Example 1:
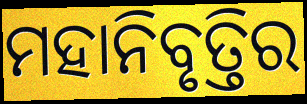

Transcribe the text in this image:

ମହାନିବୃତ୍ତିର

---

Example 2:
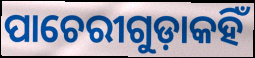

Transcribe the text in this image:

ପାଚେରୀଗୁଡ଼ାକହିଁ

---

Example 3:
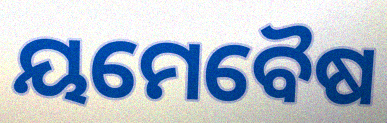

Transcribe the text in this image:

ୟମେବୈଷ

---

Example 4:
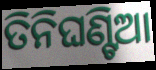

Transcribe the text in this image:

ତିନିଘଣ୍ଟିଆ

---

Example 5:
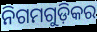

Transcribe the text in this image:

ନିଗମଗୁଡ଼ିକର